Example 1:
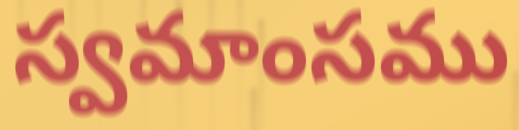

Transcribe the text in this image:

స్వమాంసము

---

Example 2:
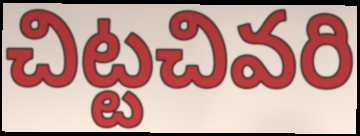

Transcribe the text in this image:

చిట్టచివరి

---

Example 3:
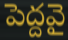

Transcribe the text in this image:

పెద్దవై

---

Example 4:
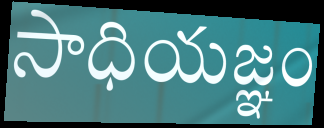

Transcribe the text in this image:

సాధియజ్ఞం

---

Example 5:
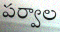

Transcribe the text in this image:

పర్వాల